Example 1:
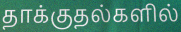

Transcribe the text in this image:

தாக்குதல்களில்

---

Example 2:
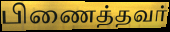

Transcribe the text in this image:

பிணைத்தவர்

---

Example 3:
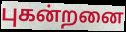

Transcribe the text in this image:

புகன்றனை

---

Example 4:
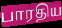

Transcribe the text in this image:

பாரதிய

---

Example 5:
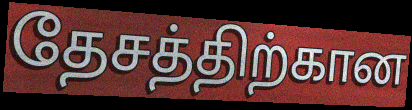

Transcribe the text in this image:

தேசத்திற்கான